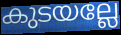
കുടയല്ലേ